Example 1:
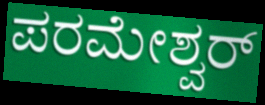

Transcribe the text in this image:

ಪರಮೇಶ್ವರ್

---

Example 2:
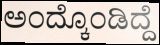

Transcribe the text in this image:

ಅಂದ್ಕೊಂಡಿದ್ದೆ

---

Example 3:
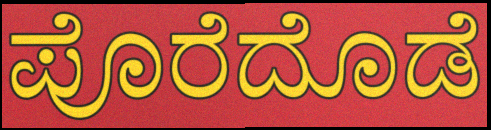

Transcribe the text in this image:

ಪೊರೆದೊಡೆ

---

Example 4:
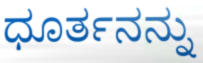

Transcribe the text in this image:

ಧೂರ್ತನನ್ನು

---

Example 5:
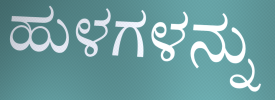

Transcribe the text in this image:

ಹುಳಗಳನ್ನು